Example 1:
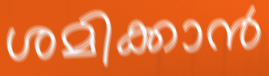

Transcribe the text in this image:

ശമിക്കാൻ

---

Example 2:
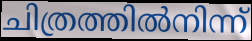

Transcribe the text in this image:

ചിത്രത്തിൽനിന്ന്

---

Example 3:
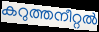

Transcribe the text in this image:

കറുത്തനീറ്റൽ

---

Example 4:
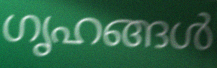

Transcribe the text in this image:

ഗൃഹങ്ങൾ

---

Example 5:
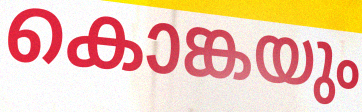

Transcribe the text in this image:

കൊങ്കയും